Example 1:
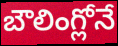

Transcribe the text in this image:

బౌలింగ్లోనే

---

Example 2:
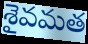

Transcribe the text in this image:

శైవమత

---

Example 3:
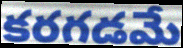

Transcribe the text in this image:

కరగడమే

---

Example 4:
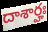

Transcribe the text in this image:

దాశార్హః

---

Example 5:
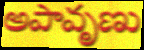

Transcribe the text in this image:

అపావృణు